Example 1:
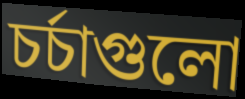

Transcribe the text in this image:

চর্চাগুলো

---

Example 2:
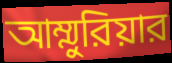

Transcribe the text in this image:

আম্মুরিয়ার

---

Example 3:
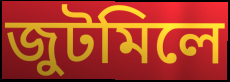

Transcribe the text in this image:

জুটমিলে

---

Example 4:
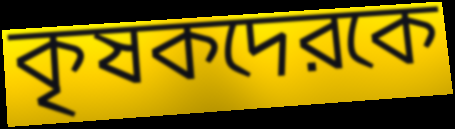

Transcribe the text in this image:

কৃষকদেরকে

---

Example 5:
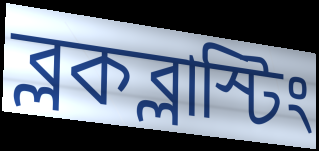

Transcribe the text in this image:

ব্লকব্লাস্টিং